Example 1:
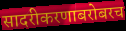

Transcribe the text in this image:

सादरीकरणाबरोबरच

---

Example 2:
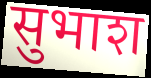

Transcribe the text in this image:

सुभाश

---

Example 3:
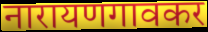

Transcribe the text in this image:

नारायणगावकर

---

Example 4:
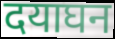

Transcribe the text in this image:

दयाघन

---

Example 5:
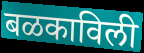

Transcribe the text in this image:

बळकाविली